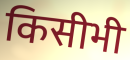
किसीभी